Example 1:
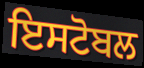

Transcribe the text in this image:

ਇਸਟੋਬਲ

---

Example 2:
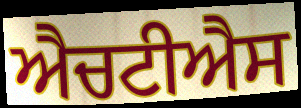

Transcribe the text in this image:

ਐਚਟੀਐਸ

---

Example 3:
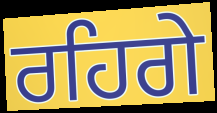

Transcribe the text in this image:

ਰਹਿਗੇ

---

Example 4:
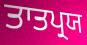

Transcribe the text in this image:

ਤਾਤਪ੍ਰਯ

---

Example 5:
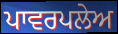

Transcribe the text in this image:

ਪਾਵਰਪਲੇਅ